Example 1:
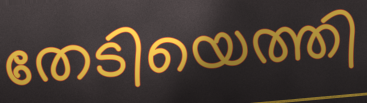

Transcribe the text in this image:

തേടിയെത്തി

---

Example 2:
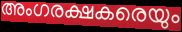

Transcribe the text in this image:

അംഗരക്ഷകരെയും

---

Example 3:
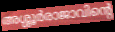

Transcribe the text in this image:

അശ്ശൂർരാജാവിന്റെ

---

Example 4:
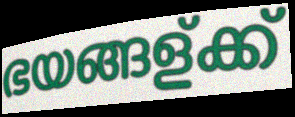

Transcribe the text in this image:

ഭയങ്ങള്ക്ക്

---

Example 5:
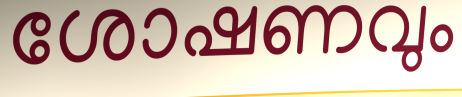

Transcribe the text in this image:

ശോഷണവും